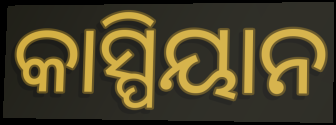
କାସ୍ପିୟାନ